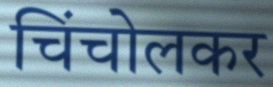
चिंचोलकर